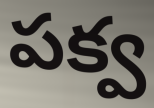
పక్వ